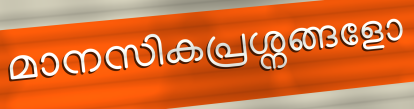
മാനസികപ്രശ്നങ്ങളോ